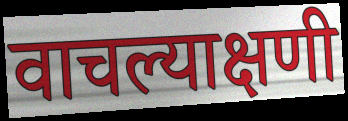
वाचल्याक्षणी